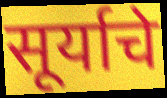
सूर्याचे